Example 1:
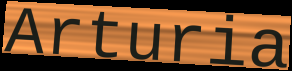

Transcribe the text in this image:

Arturia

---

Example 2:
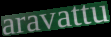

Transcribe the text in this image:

aravattu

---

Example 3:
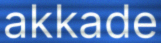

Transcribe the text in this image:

akkade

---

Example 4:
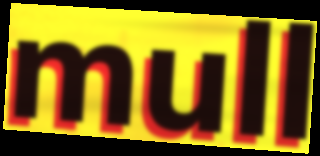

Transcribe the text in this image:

mull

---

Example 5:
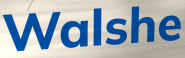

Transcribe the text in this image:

Walshe